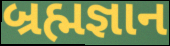
બ્રહ્મજ્ઞાન